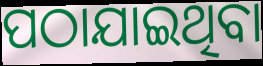
ପଠାଯାଇଥିବା